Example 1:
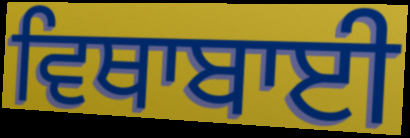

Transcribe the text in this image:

ਵਿਥਾਬਾਈ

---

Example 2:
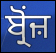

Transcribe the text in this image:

ਬ੍ਰੋਂਜ਼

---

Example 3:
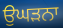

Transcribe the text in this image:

ਉਘੜਨਾ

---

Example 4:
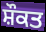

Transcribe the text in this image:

ਸ਼ੌਕਤ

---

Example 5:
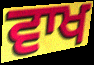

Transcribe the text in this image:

ਵਾਖ